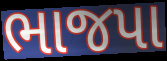
ભાજપા